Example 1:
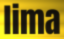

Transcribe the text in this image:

lima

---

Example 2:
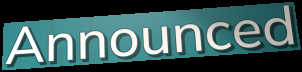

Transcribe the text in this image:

Announced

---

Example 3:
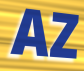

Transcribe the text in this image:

AZ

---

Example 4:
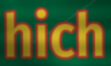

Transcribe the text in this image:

hich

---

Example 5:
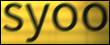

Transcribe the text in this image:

syoo